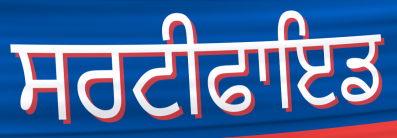
ਸਰਟੀਫਾਇਡ